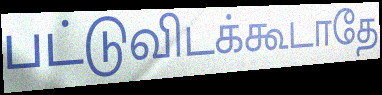
பட்டுவிடக்கூடாதே